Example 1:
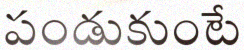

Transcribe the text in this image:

పండుకుంటే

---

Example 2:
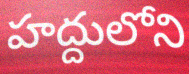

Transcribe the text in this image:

హద్దులోని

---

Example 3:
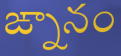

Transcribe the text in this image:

ఙ్నానం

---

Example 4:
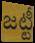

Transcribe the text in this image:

జట్టీ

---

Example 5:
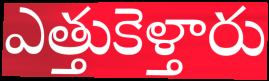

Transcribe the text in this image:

ఎత్తుకెళ్తారు